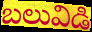
బలువిడి